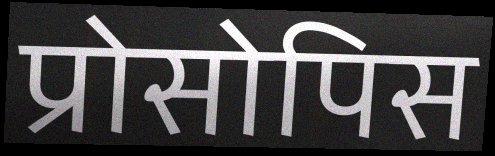
प्रोसोपिस